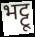
भट्टू